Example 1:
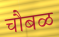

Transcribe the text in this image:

चौबळ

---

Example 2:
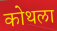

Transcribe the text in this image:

कोथला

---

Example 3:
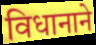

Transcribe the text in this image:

विधानाने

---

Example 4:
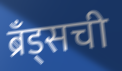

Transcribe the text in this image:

ब्रॅंड्सची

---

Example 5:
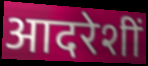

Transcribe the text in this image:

आदरेशीं